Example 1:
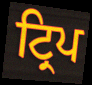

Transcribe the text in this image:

ਟ੍ਰਿਪ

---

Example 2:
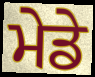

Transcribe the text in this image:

ਮੇਡੇ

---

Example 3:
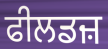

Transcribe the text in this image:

ਫੀਲਡਜ਼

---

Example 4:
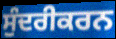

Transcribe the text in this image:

ਸੁੰਦਰੀਕਰਨ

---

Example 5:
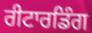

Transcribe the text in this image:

ਰੀਟਾਰਡਿੰਗ